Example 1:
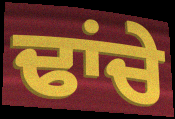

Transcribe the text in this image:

ਢਾਂਚੇ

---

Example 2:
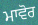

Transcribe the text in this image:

ਮਾਵੋਰ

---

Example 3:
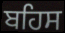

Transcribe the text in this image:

ਬਹਿਸ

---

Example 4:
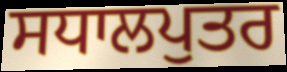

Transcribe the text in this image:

ਸਧਾਲਪੁਤਰ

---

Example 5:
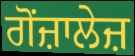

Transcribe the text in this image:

ਗੋਂਜ਼ਾਲੇਜ਼